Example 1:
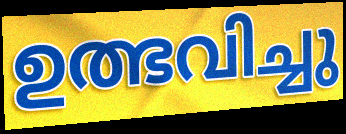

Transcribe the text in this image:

ഉത്ഭവിച്ചു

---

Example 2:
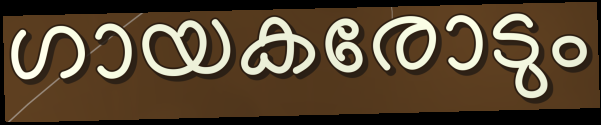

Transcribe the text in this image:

ഗായകരോടും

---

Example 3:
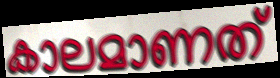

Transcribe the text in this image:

കാലമാണത്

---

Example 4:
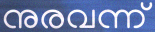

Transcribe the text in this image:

നുരവന്ന്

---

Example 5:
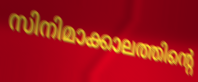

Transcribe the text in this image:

സിനിമാക്കാലത്തിന്റെ